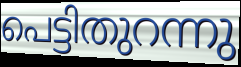
പെട്ടിതുറന്നു